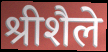
श्रीशैले